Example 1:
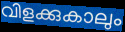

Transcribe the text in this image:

വിളക്കുകാലും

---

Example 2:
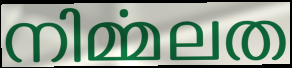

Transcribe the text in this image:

നിൎമ്മലത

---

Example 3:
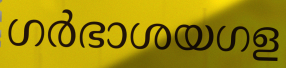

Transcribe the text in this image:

ഗർഭാശയഗള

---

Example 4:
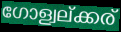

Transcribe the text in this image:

ഗോള്വല്ക്കര്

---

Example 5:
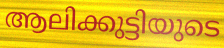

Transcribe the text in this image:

ആലിക്കുട്ടിയുടെ